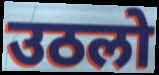
उठलो